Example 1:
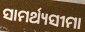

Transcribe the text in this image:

ସାମର୍ଥ୍ୟସୀମା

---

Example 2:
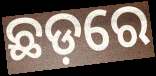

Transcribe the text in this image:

ଛଡ଼ରେ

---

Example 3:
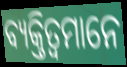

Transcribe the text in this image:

ବ୍ୟକ୍ତିତ୍ୱମାନେ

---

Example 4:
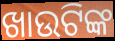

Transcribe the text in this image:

ଖାଉଟିଙ୍କ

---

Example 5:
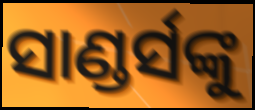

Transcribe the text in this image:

ସାଣ୍ଡର୍ସଙ୍କୁ